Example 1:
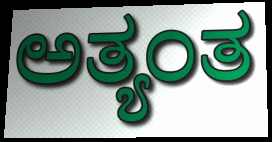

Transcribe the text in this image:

ಅತ್ಯಂತ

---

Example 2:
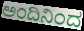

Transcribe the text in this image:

ಅಂದಿನಿಂದ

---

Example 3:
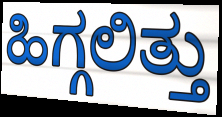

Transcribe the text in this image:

ಹಿಗ್ಗಲಿತ್ತು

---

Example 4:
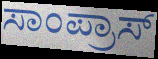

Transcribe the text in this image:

ಸಾಂಪ್ರಾಸ್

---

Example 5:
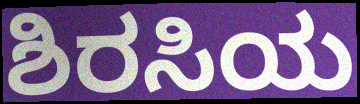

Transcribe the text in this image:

ಶಿರಸಿಯ